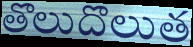
తొలుదొలుత